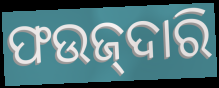
ଫଉଜ୍‌ଦାରି